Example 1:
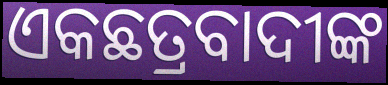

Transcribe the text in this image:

ଏକଛତ୍ରବାଦୀଙ୍କ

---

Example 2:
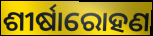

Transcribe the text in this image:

ଶୀର୍ଷାରୋହଣ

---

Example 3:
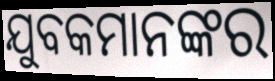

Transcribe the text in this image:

ଯୁବକମାନଙ୍କର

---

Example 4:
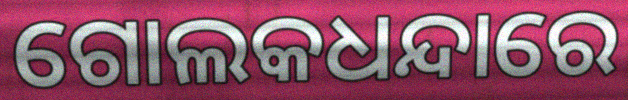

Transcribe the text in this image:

ଗୋଲକଧନ୍ଦାରେ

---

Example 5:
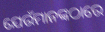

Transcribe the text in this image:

ଯେଉଁମାନଙ୍କଠାରେ